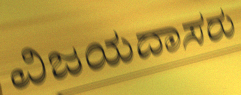
ವಿಜಯದಾಸರು